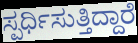
ಸ್ಪರ್ಧಿಸುತ್ತಿದ್ದಾರೆ